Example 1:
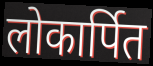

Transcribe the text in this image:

लोकार्पित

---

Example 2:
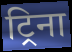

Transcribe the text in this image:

ट्रिना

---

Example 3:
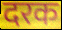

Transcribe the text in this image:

दरक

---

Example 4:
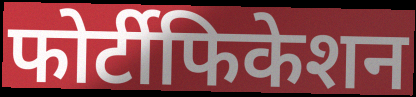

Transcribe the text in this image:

फोर्टीफिकेशन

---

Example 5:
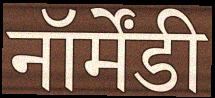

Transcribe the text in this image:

नॉर्मेंडी